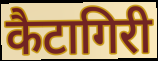
कैटागिरी